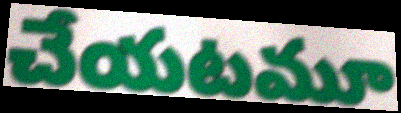
చేయటమూ